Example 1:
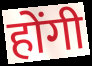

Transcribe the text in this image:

होंगी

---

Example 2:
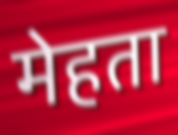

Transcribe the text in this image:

मेहता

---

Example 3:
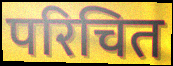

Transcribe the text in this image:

परिचित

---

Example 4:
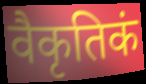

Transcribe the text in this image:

वैकृतिकं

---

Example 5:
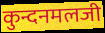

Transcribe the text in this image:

कुन्दनमलजी